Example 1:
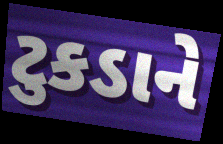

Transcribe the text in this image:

ટુકડાને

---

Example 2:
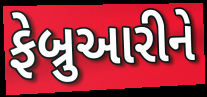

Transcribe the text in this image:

ફેબ્રુઆરીને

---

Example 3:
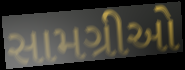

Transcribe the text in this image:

સામગ્રીઓ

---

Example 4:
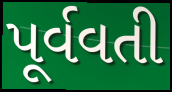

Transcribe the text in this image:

પૂર્વવતી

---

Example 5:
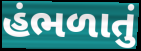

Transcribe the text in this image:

હંભળાતું